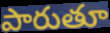
పారుతూ